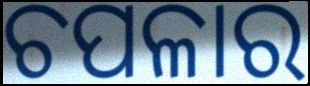
ଚପଳାର